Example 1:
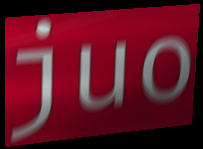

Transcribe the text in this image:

juo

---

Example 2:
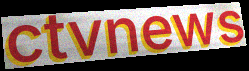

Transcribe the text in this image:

ctvnews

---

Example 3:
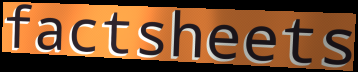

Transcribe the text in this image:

factsheets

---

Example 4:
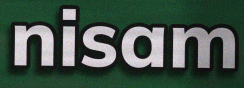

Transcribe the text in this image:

nisam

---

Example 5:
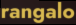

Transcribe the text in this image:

rangalo